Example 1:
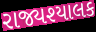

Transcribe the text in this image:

રાજ્યશ્યાલક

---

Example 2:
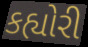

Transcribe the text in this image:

કહ્યોરી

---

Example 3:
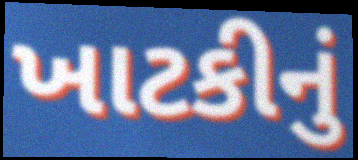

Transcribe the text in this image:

ખાટકીનું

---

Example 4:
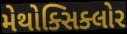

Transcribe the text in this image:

મેથોક્સિક્લોર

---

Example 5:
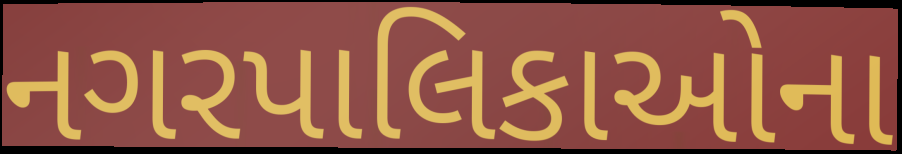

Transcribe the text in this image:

નગરપાલિકાઓના